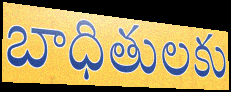
బాధితులకు